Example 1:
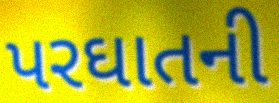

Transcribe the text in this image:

પરઘાતની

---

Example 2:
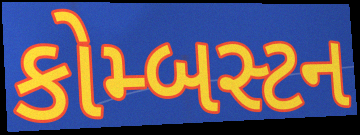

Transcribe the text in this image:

કોમ્બસ્ટન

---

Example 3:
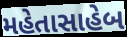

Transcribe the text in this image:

મહેતાસાહેબ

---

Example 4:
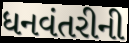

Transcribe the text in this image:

ધનવંતરીની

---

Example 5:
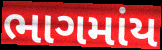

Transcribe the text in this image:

ભાગમાંય